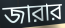
জারার